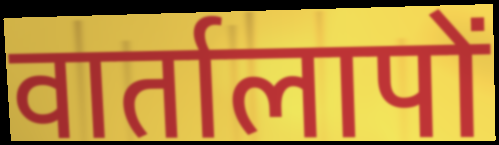
वार्तालापों